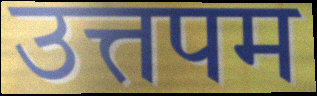
उत्तपम